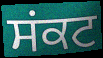
ਸਂਕਟ